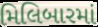
મિલિબારમાં